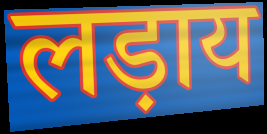
लड़ाय